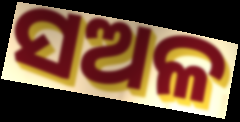
ସଅଳ